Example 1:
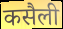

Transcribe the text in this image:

कसैली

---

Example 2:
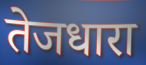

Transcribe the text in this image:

तेजधारा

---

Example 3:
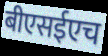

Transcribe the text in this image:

बीएसईएच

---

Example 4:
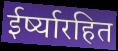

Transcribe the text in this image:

ईर्ष्यारहित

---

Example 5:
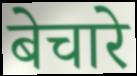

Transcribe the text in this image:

बेचारे